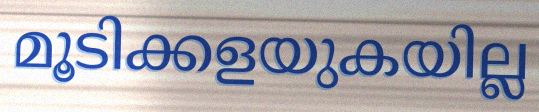
മൂടിക്കളയുകയില്ല